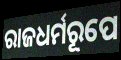
ରାଜଧର୍ମରୂପେ